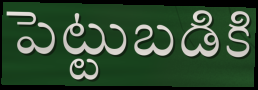
పెట్టుబడికి